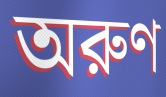
অরুণ